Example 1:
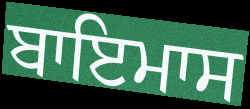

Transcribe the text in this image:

ਬਾਇਮਾਸ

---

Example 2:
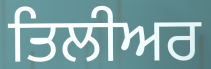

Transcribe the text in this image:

ਤਿਲੀਅਰ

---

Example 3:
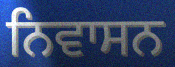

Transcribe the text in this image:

ਨਿਵਾਸਨ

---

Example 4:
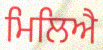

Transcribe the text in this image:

ਮਿਲਿਐ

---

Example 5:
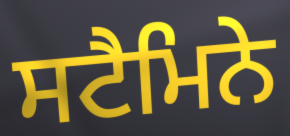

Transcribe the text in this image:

ਸਟੈਮਿਨੇ